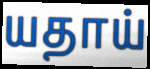
யதாய்